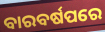
ବାରବର୍ଷପରେ